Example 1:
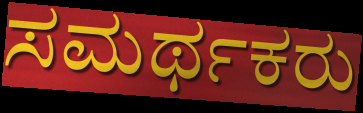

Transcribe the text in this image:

ಸಮರ್ಥಕರು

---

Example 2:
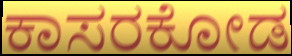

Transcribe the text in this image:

ಕಾಸರಕೋಡ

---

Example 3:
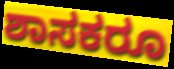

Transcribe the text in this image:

ಶಾಸಕರೂ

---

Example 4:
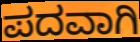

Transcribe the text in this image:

ಪದವಾಗಿ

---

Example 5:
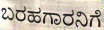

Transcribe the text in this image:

ಬರಹಗಾರನಿಗೆ